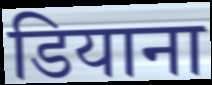
डियाना